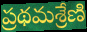
ప్రథమశ్రేణి